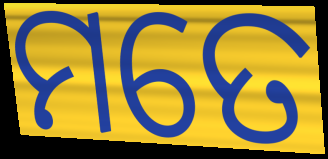
ମତେ